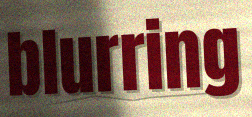
blurring